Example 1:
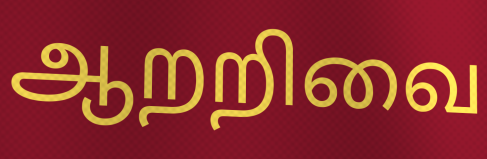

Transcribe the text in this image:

ஆறறிவை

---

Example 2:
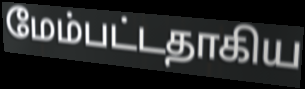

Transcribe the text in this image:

மேம்பட்டதாகிய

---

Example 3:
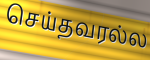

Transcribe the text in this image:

செய்தவரல்ல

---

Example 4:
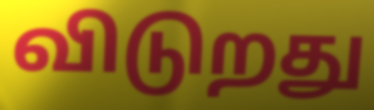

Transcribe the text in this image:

விடுறது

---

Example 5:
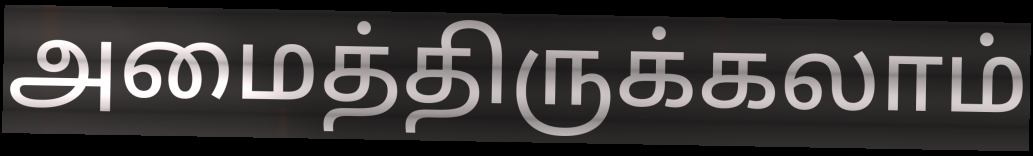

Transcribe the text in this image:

அமைத்திருக்கலாம்